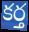
కర్త